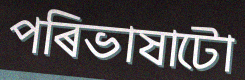
পৰিভাষাটো